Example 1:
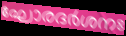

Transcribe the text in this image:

ഘോരദർശനഃ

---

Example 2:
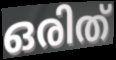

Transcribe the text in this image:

ഒരിത്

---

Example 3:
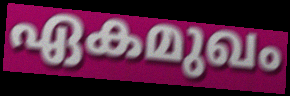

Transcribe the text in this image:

ഏകമുഖം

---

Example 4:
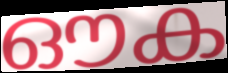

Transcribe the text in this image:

ഔക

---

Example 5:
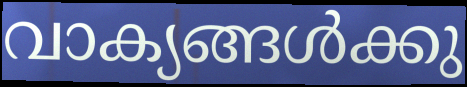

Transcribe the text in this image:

വാക്യങ്ങൾക്കു